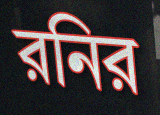
রনির